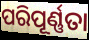
ପରିପୂର୍ଣ୍ଣତା